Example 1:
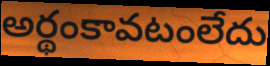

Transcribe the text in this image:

అర్థంకావటంలేదు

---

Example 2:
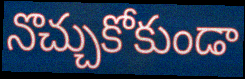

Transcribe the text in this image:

నొచ్చుకోకుండా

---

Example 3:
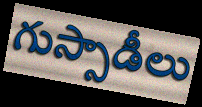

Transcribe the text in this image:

గుస్సాడీలు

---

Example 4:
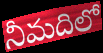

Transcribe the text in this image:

నీమదిలో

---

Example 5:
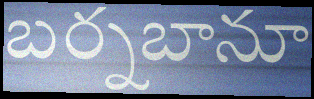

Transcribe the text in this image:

బర్నబానూ